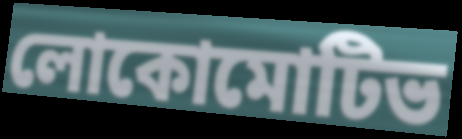
লোকোমোটিভ